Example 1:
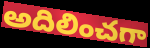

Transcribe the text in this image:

అదిలించగా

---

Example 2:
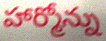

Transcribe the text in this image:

హార్మోన్ను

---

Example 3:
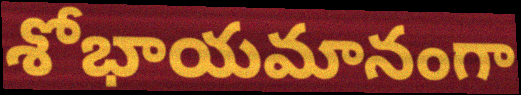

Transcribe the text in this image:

శోభాయమానంగా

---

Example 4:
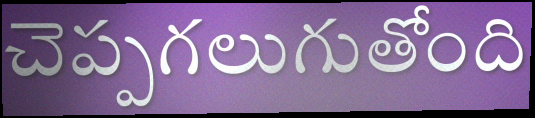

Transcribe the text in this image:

చెప్పగలుగుతోంది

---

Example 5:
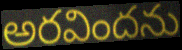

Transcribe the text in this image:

అరవిందను